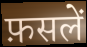
फ़सलें